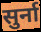
सुर्ना